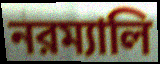
নরম্যালি